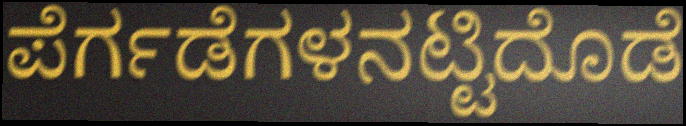
ಪೆರ್ಗಡೆಗಳನಟ್ಟಿದೊಡೆ